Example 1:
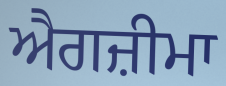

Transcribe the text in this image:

ਐਗਜ਼ੀਮਾ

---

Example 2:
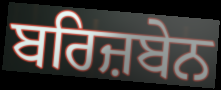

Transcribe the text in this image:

ਬਰਿਜ਼ਬੇਨ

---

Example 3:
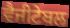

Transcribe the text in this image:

ਵੈਜੀਟੇਬਲ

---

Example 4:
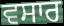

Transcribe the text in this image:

ਵਸਾਰ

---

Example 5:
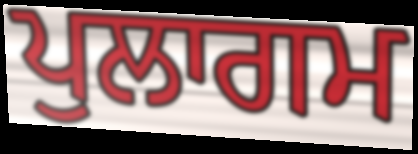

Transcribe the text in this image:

ਪੁਲਾਗਮ